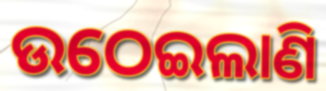
ଉଠେଇଲାଣି